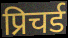
प्रिचर्ड